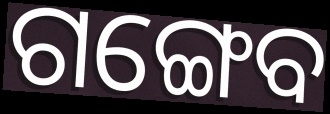
ଗଙ୍ଗେବ